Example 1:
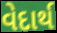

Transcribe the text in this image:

વેદાર્થ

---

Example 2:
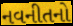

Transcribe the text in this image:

નવનીતનો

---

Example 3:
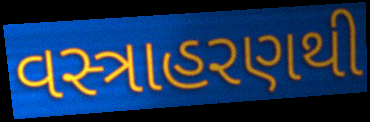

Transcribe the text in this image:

વસ્ત્રાહરણથી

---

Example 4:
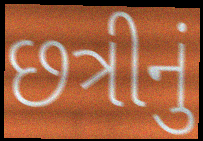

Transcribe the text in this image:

છત્રીનું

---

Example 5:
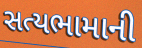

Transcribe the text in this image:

સત્યભામાની